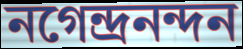
নগেন্দ্রনন্দন